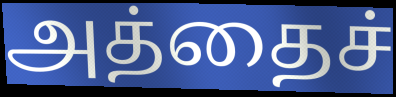
அத்தைச்